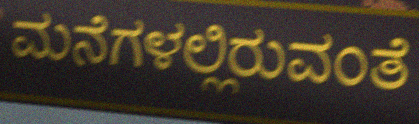
ಮನೆಗಳಲ್ಲಿರುವಂತೆ